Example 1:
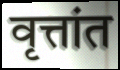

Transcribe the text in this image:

वृत्तांत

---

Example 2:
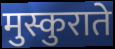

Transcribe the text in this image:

मुस्कुराते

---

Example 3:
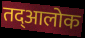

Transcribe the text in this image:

तद्आलोक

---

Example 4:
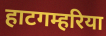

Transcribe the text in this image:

हाटगम्हरिया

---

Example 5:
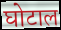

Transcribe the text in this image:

घोटाल